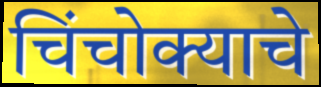
चिंचोक्याचे